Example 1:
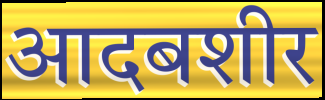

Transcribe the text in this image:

आदबशीर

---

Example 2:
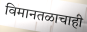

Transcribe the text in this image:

विमानतळाचाही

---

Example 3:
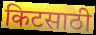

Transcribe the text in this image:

किटसाठी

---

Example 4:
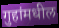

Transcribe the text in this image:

गुहांमधील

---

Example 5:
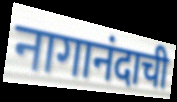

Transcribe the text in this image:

नागानंदाची